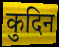
कुदिन